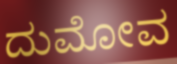
ದುಮೋವ